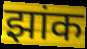
झांक